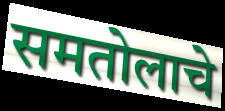
समतोलाचे